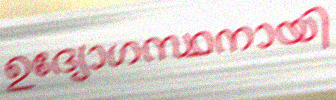
ഉദ്യോഗസ്ഥനായി